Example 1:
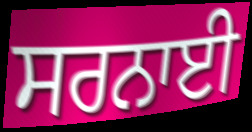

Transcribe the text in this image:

ਸਰਨਾਈ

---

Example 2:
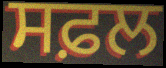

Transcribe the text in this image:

ਸਫ਼ਲ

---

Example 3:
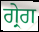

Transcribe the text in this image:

ਗ੍ਰੇਗ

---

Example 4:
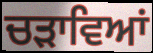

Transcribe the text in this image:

ਚੜਾਵਿਆਂ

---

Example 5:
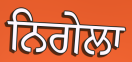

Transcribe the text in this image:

ਨਿਗੇਲਾ